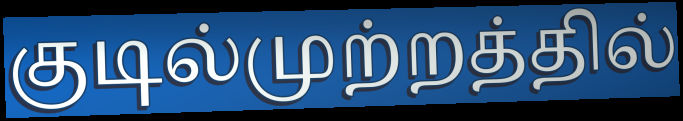
குடில்முற்றத்தில்